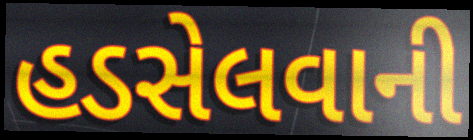
હડસેલવાની